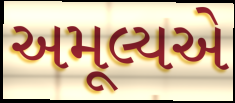
અમૂલ્યએ